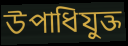
উপাধিযুক্ত